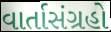
વાર્તાસંગ્રહો